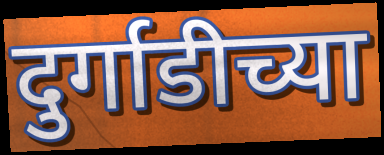
दुर्गाडीच्या